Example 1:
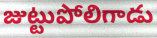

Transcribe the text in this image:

జుట్టుపోలిగాడు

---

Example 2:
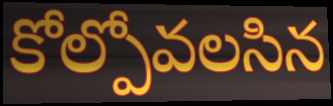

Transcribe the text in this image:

కోల్పోవలసిన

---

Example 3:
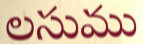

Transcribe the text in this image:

లసుము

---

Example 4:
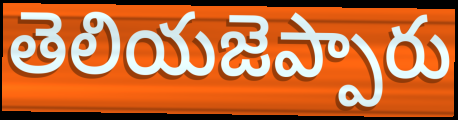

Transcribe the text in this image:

తెలియజెప్పారు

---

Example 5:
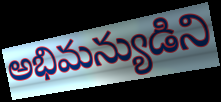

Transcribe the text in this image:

అభిమన్యుడిని